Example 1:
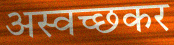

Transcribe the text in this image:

अस्वच्छकर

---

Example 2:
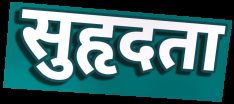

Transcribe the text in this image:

सुहृदता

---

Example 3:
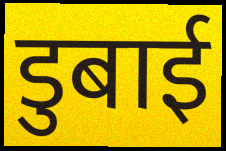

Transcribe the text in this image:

डुबाई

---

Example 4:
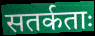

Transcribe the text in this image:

सतर्कताः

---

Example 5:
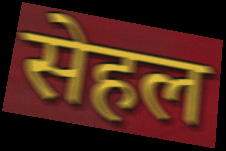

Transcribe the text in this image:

सेहल